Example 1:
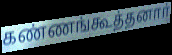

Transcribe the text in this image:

கண்ணங்கூத்தனார்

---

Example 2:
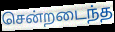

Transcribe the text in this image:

சென்றடைந்த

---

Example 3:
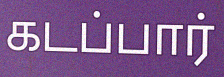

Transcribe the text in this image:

கடப்பார்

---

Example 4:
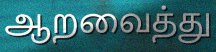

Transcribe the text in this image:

ஆறவைத்து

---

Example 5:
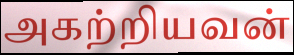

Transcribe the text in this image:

அகற்றியவன்